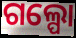
ଗଲ୍ପୋ